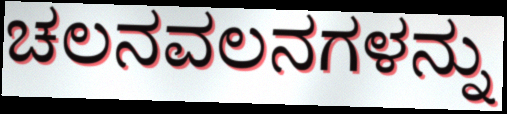
ಚಲನವಲನಗಳನ್ನು